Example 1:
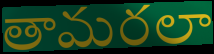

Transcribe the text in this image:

తామరలా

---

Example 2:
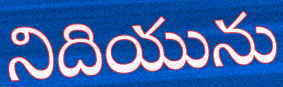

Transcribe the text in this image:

నిదియును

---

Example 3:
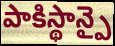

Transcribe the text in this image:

పాకిస్థాన్పై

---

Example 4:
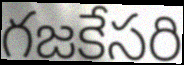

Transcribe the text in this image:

గజకేసరి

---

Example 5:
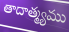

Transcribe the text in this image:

తాదాత్మ్యము